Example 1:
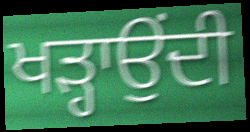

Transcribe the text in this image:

ਖੜ੍ਹਾਉਂਦੀ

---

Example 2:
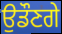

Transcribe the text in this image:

ਉਡੌਣਗੇ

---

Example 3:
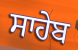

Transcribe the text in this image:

ਸਾਹੇਬ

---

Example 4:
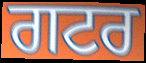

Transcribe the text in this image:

ਗਟਰ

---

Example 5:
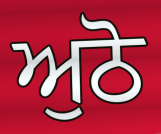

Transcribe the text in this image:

ਅੁਠੋ